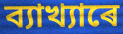
ব্যাখ্যাৰে